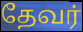
தேவர்